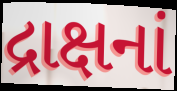
દ્રાક્ષનાં